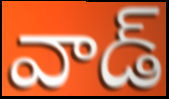
వాడ్